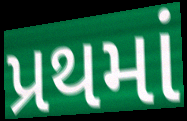
પ્રથમાં